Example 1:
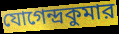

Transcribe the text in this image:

যোগেন্দ্রকুমার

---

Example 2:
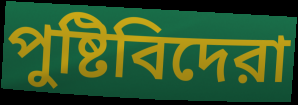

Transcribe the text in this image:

পুষ্টিবিদেরা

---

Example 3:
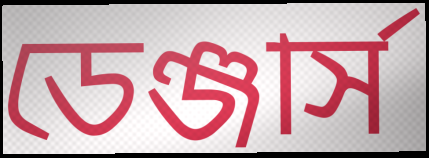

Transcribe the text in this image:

ডেঞ্জার্স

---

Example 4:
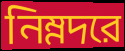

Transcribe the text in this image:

নিম্নদরে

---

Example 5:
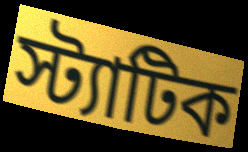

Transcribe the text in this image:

স্ট্যাটিক